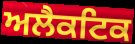
ਅਲੈਕਟਿਕ